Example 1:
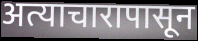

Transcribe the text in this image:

अत्याचारापासून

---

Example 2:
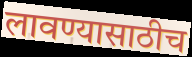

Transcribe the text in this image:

लावण्यासाठीच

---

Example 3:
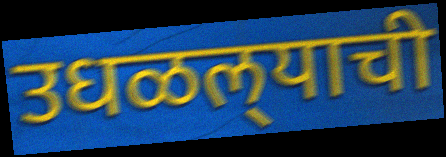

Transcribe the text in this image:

उधळल्याची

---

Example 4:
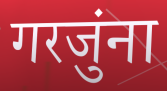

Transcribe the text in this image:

गरजुंना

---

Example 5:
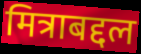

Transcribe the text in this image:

मित्राबद्दल